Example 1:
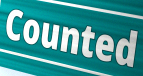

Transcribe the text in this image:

Counted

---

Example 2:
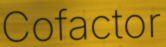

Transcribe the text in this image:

Cofactor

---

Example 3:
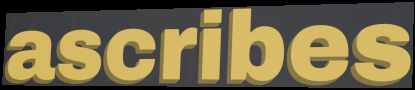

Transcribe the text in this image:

ascribes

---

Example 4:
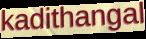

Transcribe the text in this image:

kadithangal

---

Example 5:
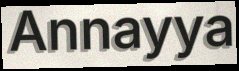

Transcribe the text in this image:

Annayya